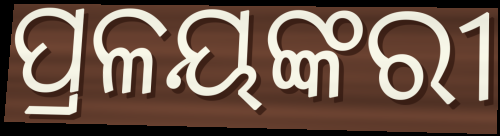
ପ୍ରଳୟଙ୍କରୀ